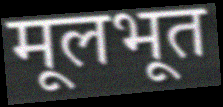
मूलभूत